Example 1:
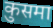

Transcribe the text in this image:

कुसमा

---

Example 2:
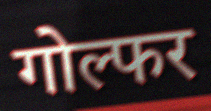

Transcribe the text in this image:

गोल्फर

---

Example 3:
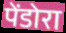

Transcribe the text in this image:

पेंडोरा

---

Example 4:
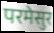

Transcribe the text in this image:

परमेसुर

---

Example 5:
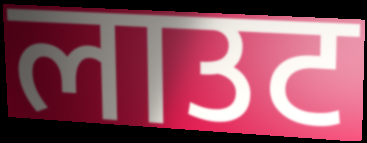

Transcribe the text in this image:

लाउट